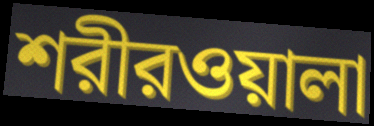
শরীরওয়ালা